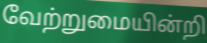
வேற்றுமையின்றி